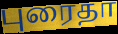
புரைதா